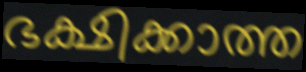
ഭക്ഷിക്കാത്ത